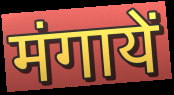
मंगायें